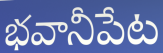
భవానీపేట